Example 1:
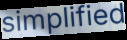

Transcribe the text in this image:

simplified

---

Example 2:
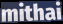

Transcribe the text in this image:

mithai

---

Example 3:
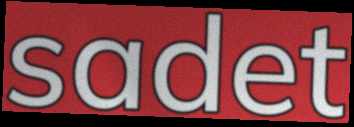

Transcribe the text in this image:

sadet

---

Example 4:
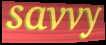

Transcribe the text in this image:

savvy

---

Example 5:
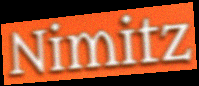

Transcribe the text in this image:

Nimitz